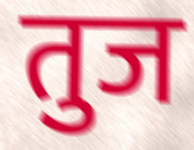
तुज